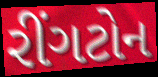
રીંગટોન